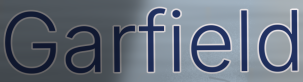
Garfield